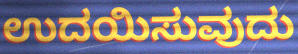
ಉದಯಿಸುವುದು